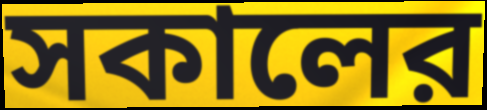
সকালের